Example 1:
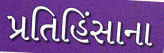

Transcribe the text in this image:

પ્રતિહિંસાના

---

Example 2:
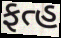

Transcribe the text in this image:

ફત્હ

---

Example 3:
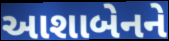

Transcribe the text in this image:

આશાબેનને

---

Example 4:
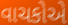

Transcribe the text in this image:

વાચકોએ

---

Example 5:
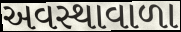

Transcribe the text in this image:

અવસ્થાવાળા